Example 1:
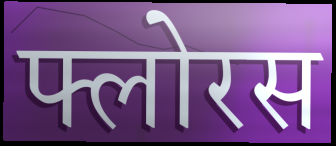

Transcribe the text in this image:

फ्लोरस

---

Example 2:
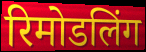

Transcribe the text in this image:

रिमोडलिंग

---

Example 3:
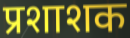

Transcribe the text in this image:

प्रशाशक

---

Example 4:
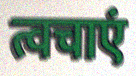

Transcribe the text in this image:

त्वचाएं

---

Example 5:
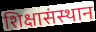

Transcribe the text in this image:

शिक्षासंस्थान